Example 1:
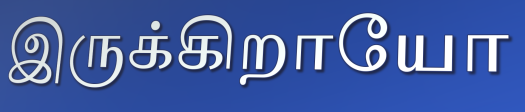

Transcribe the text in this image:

இருக்கிறாயோ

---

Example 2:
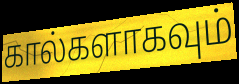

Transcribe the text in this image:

கால்களாகவும்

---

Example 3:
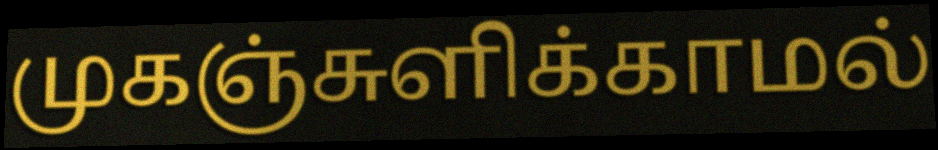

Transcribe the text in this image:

முகஞ்சுளிக்காமல்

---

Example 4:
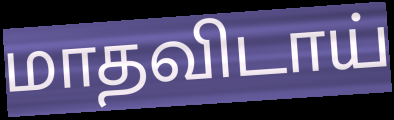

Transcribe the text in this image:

மாதவிடாய்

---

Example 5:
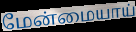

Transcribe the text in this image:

மேன்மையாய்